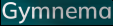
Gymnema